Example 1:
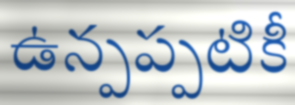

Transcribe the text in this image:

ఉన్పప్పటికీ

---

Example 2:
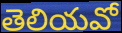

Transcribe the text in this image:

తెలియవో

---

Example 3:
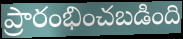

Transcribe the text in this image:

ప్రారంభించబడింది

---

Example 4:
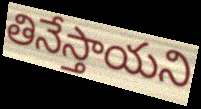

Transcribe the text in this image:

తినేస్తాయని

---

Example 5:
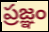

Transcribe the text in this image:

ప్రజ్ఞం